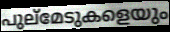
പുല്മേടുകളെയും